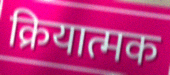
क्रियात्मक